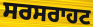
ਸਰਸਰਾਹਟ